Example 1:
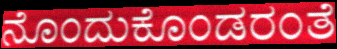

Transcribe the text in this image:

ನೊಂದುಕೊಂಡರಂತೆ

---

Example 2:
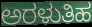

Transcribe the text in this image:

ಅರಳುತಿಹ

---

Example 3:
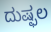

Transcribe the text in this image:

ದುಷ್ಫಲ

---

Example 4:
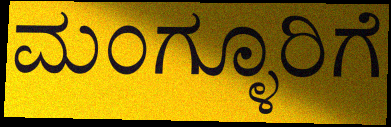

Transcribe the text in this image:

ಮಂಗ್ಳೂರಿಗೆ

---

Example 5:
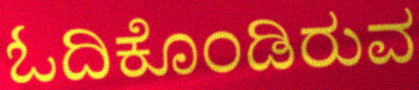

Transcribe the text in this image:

ಓದಿಕೊಂಡಿರುವ